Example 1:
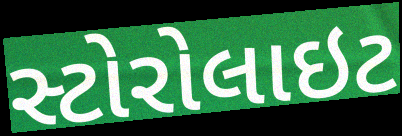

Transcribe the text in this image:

સ્ટોરોલાઇટ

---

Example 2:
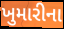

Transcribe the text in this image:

ખુમારીના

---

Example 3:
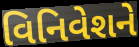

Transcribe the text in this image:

વિનિવેશને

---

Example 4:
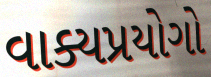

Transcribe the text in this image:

વાક્યપ્રયોગો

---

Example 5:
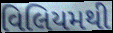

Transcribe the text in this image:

વિલિયમથી